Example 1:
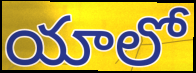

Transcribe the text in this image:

యాలో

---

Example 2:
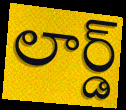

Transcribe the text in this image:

లార్డ్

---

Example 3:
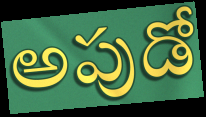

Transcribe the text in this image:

అపుడో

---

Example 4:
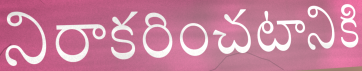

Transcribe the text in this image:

నిరాకరించటానికి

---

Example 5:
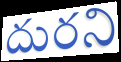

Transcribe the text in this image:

దురని